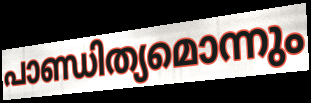
പാണ്ഡിത്യമൊന്നും